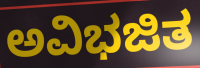
ಅವಿಭಜಿತ